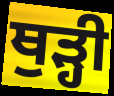
ਥੁੜ੍ਹੀ